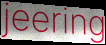
jeering